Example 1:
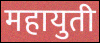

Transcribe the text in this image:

महायुती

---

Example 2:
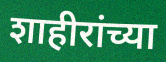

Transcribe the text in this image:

शाहीरांच्या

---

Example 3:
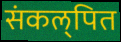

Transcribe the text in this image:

संकल्पित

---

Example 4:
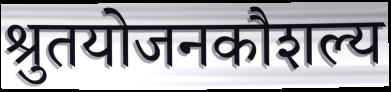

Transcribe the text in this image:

श्रुतयोजनकौशल्य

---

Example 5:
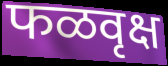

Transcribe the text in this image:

फळवृक्ष